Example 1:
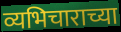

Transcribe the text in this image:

व्यभिचाराच्या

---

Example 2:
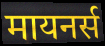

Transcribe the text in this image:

मायनर्स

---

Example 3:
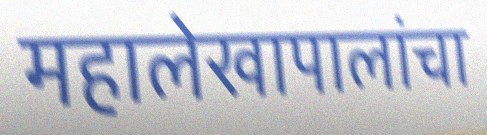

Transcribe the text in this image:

महालेखापालांचा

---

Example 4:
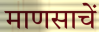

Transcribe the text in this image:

माणसाचें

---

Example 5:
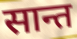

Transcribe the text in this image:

सान्त